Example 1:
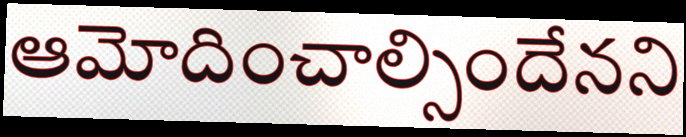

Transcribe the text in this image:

ఆమోదించాల్సిందేనని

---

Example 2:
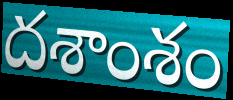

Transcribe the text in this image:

దశాంశం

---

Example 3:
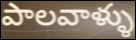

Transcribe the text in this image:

పాలవాళ్ళు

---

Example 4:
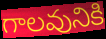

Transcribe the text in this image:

గాలవునికి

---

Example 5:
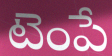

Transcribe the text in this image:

టెంపే